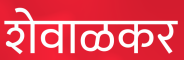
शेवाळकर